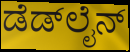
ಡೆಡ್‍ಲೈನ್